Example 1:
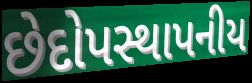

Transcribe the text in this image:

છેદોપસ્થાપનીય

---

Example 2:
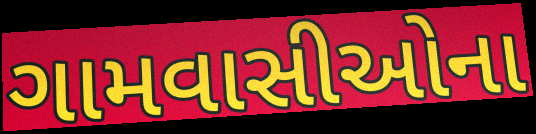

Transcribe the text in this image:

ગામવાસીઓના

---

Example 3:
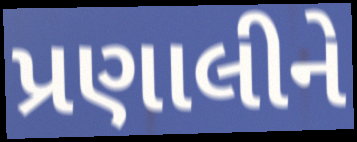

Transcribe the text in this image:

પ્રણાલીને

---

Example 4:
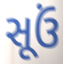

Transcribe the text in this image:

સૂઉં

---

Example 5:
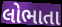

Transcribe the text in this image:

લોભાતા